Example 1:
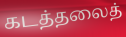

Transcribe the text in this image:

கடத்தலைத்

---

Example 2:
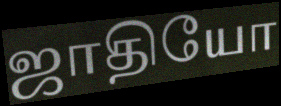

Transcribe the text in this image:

ஜாதியோ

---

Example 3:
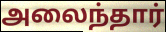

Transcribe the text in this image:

அலைந்தார்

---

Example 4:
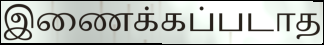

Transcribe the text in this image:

இணைக்கப்படாத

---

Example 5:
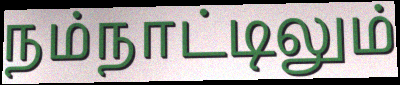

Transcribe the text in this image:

நம்நாட்டிலும்